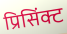
प्रिसिंक्ट